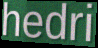
hedri